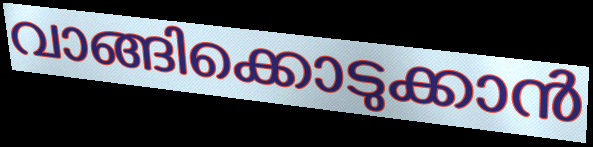
വാങ്ങിക്കൊടുക്കാൻ